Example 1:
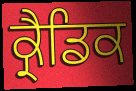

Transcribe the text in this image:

ਕ੍ਰੈਡਿਕ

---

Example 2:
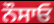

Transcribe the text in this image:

ਨੌਸਾਓ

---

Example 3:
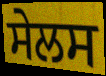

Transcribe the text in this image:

ਸੇਲਸ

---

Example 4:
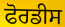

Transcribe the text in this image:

ਫੋਰਡੀਸ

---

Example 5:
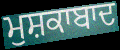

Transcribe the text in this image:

ਮੁਸ਼ਕਾਬਾਦ